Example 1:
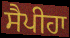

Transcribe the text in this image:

ਸੈਪੀਹਾ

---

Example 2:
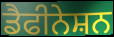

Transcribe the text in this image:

ਡੈਫੀਨੇਸ਼ਨ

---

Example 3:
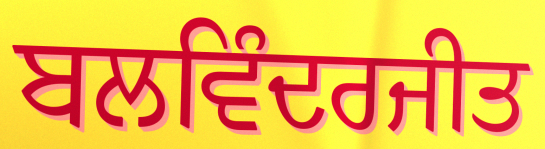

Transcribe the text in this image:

ਬਲਵਿੰਦਰਜੀਤ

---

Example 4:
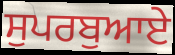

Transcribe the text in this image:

ਸੁਪਰਬੁਆਏ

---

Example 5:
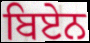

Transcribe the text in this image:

ਬਿਏਨ